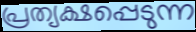
പ്രത്യക്ഷപ്പെടുന്ന